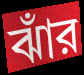
ঝাঁর